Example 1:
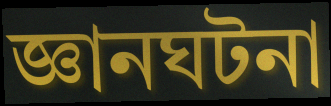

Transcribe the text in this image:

জ্ঞানঘটনা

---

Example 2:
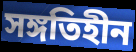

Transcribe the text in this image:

সঙ্গতিহীন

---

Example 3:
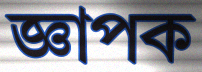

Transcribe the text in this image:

জ্ঞাপক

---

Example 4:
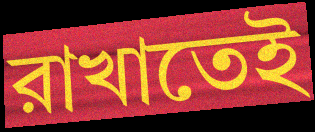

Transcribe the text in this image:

রাখাতেই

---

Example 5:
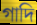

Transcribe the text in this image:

গাদি